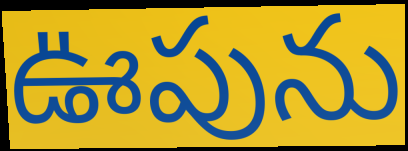
ఊపును